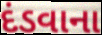
દંડવાના